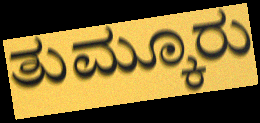
ತುಮ್ಕೂರು